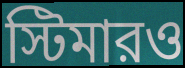
স্টিমারও